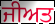
ਜੀਅਤ